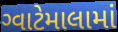
ગ્વાટેમાલામાં